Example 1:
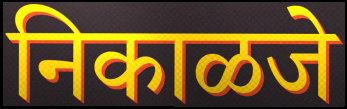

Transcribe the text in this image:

निकाळजे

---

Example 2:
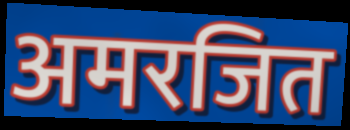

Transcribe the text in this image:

अमरजित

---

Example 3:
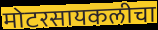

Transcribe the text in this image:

मोटरसायकलीचा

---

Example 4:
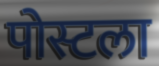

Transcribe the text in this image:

पोस्टला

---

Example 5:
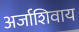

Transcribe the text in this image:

अर्जाशिवाय